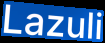
Lazuli